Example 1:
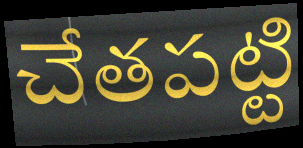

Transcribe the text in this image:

చేతపట్టి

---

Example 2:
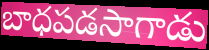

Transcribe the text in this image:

బాధపడసాగాడు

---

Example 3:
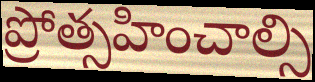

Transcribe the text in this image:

ప్రోత్సహించాల్సి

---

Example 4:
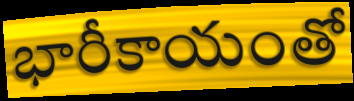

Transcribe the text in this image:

భారీకాయంతో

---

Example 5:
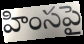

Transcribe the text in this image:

హింసపై